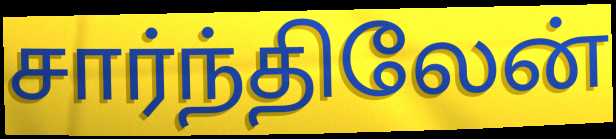
சார்ந்திலேன்